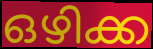
ഒഴിക്ക